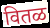
वितळ